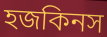
হজকিনস